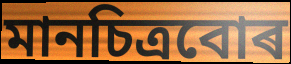
মানচিত্ৰবোৰ